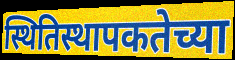
स्थितिस्थापकतेच्या